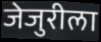
जेजुरीला